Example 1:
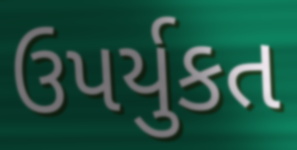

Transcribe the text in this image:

ઉપર્યુકત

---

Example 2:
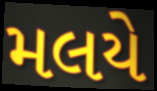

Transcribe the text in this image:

મલયે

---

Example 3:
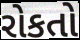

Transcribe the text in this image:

રોકતો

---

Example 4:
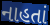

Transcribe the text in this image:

નાહતાં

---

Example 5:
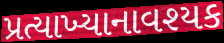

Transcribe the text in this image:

પ્રત્યાખ્યાનાવશ્યક